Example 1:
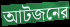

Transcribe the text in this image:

আটজনের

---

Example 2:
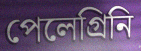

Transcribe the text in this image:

পেলেগ্রিনি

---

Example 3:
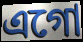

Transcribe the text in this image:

এগো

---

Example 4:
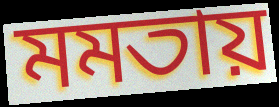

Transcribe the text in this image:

মমতায়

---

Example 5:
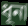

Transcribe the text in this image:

ধূনা